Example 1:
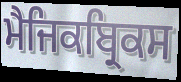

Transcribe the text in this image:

ਮੈਜਿਕਬ੍ਰਿਕਸ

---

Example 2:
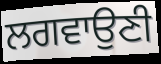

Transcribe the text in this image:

ਲਗਵਾਉਣੀ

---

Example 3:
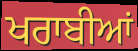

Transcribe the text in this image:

ਖਰਾਬੀਆਂ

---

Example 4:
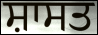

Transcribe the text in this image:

ਸ਼ਾਸਤ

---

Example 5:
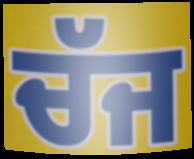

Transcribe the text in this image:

ਚੱਜ